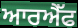
ਆਰਐੱਫ